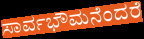
ಸಾರ್ವಭೌಮನೆಂದರೆ